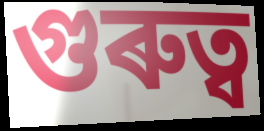
গুৰুত্ব